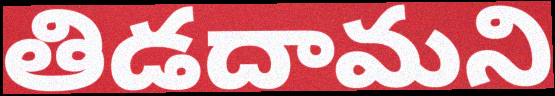
తిడదామని